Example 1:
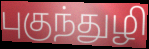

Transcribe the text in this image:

புகுந்துழி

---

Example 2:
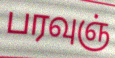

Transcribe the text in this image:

பரவுஞ்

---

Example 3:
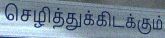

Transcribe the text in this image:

செழித்துக்கிடக்கும்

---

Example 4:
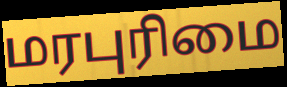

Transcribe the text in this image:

மரபுரிமை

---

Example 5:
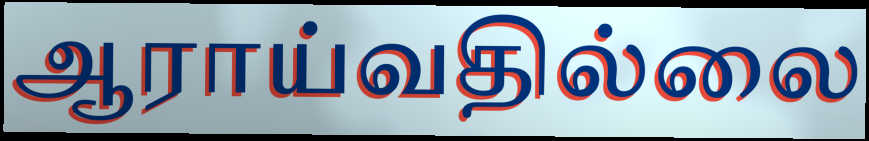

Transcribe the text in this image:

ஆராய்வதில்லை